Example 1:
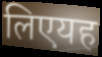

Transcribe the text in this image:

लिएयह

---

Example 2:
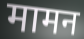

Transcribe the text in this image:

मामन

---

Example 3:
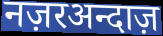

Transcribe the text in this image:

नज़रअन्दाज़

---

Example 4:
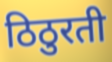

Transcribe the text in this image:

ठिठुरती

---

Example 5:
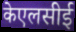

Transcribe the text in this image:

केएलसीई